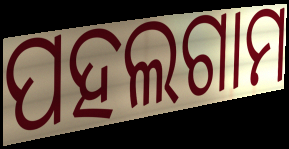
ପହଲଗାମ